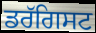
ਡਰੱਗਿਸਟ